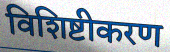
विशिष्टीकरण